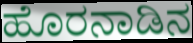
ಹೊರನಾಡಿನ